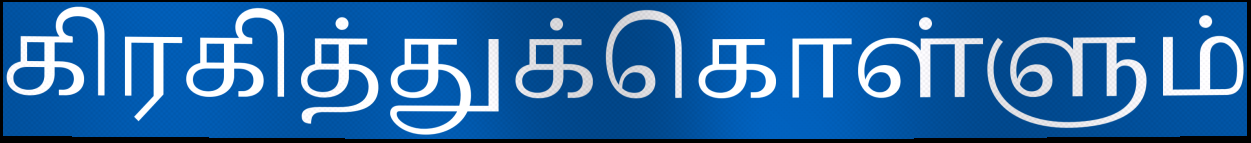
கிரகித்துக்கொள்ளும்